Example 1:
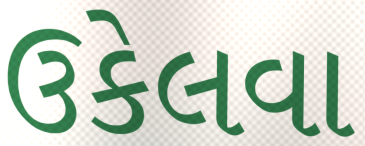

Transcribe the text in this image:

ઉકેલવા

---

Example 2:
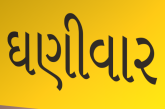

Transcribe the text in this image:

ઘણીવાર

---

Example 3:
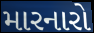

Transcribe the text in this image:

મારનારો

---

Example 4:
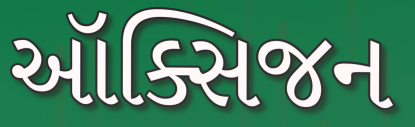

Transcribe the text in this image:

ઑક્સિજન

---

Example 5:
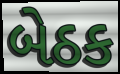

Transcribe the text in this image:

બેઠક